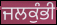
ਜਲਕੁੰਭੀ